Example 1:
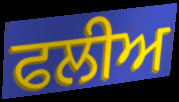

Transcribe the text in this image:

ਫਲੀਅ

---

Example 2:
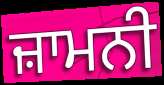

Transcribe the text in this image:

ਜ਼ਾਮਨੀ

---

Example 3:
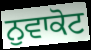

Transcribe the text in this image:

ਨੁਵਾਕੋਟ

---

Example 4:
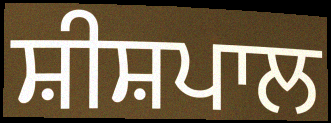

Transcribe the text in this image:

ਸ਼ੀਸ਼ਪਾਲ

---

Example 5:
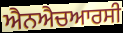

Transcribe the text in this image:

ਐਨਐਚਆਰਸੀ